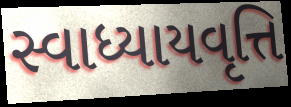
સ્વાધ્યાયવૃત્તિ